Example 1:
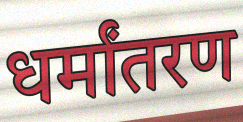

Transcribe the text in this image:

धर्मांतरण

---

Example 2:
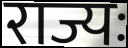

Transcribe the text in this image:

राज्यः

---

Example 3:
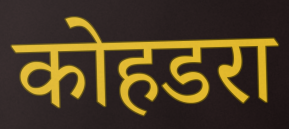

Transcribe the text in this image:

कोहडरा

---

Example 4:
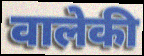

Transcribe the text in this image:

वालेकी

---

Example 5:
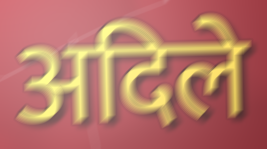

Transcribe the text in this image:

अदिले